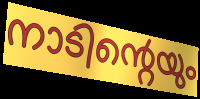
നാടിന്റെയും